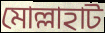
মোল্লাহাট